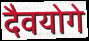
दैवयोगे